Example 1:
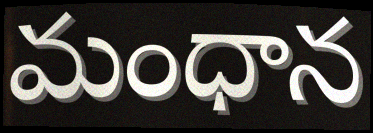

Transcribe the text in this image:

మంధాన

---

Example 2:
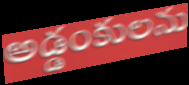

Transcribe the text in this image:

అడ్డంకులను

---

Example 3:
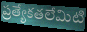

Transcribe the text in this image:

ప్రత్యేకతలేమిటి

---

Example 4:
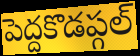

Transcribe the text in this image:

పెద్దకొడప్గల్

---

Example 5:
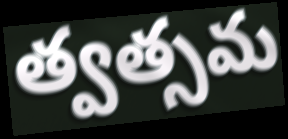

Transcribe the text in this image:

త్వత్సమ